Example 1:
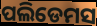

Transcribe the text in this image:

ପଲିଡେମସ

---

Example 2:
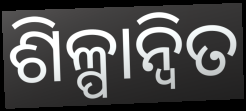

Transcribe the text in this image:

ଶିଳ୍ପାନ୍ବିତ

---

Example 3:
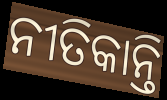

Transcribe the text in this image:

ନୀତିକାନ୍ତି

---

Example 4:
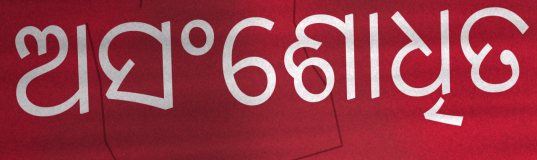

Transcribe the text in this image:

ଅସଂଶୋଧିତ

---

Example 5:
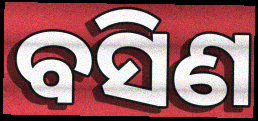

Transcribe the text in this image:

ବସିଣ